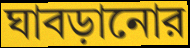
ঘাবড়ানোর